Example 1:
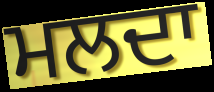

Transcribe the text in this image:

ਮਲਦਾ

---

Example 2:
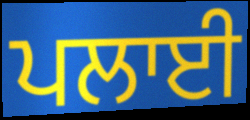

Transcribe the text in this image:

ਪਲਾਈ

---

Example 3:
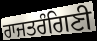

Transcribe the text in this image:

ਰਾਜਤਰੰਗਿਣੀ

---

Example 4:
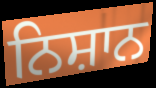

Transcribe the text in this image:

ਨਿਸ਼ਾਨ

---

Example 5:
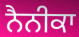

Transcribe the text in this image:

ਨੈਨੀਕਾ